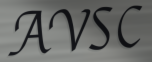
AVSC